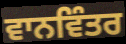
ਵਾਨਵਿੰਤਰ